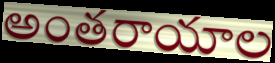
అంతరాయాల